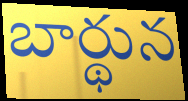
బార్థున